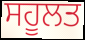
ਸਹੂਲਤ